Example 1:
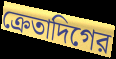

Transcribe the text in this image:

ক্রেতাদিগের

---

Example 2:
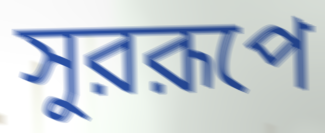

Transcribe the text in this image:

সুররূপে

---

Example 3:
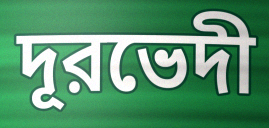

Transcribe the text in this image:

দূরভেদী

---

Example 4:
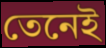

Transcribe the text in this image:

তেনেই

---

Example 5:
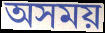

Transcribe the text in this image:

অসময়